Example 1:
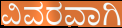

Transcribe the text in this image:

ವಿವರವಾಗಿ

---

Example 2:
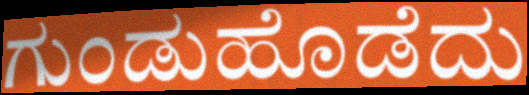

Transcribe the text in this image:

ಗುಂಡುಹೊಡೆದು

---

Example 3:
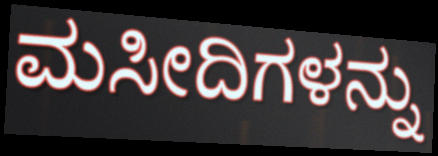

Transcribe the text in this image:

ಮಸೀದಿಗಳನ್ನು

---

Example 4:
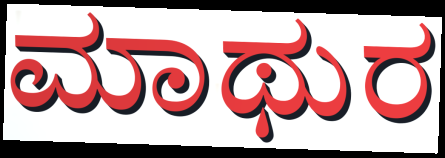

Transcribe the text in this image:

ಮಾಥುರ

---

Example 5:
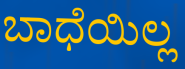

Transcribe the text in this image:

ಬಾಧೆಯಿಲ್ಲ